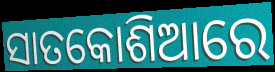
ସାତକୋଶିଆରେ